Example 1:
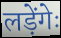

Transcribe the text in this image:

लड़ेंगेः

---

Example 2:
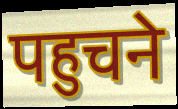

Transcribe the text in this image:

पहुचने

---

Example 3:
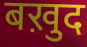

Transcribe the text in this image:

बख़ुद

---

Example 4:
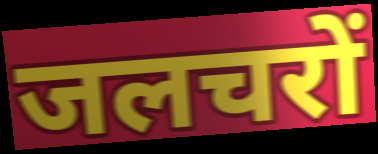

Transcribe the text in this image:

जलचरों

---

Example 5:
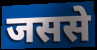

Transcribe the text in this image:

जससे